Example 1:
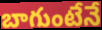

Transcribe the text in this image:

బాగుంటేనే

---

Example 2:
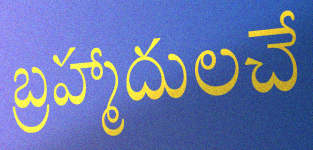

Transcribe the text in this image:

బ్రహ్మాదులచే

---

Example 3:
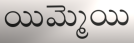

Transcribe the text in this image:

యిమ్మెయి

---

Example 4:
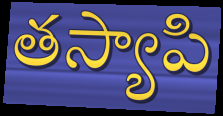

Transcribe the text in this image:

తస్యాపి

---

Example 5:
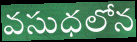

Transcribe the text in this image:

వసుధలోన